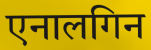
एनालगिन